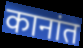
कानांत